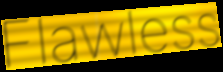
Flawless